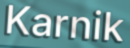
Karnik